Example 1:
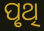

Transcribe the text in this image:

ପୃଥି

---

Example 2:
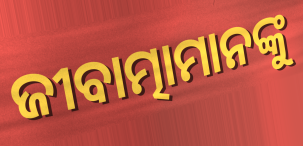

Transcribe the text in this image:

ଜୀବାତ୍ମାମାନଙ୍କୁ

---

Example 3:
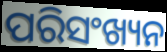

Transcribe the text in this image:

ପରିସଂଖ୍ୟନ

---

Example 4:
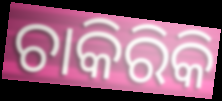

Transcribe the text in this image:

ଚାକିରିକି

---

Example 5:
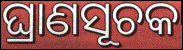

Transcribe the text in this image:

ଘ୍ରାଣସୂଚକ